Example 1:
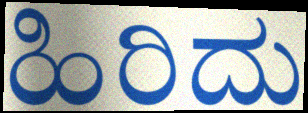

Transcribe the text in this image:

ಹಿರಿದು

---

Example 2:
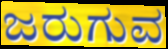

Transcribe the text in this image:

ಜರುಗುವ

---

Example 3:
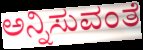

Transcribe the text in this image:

ಅನ್ನಿಸುವಂತೆ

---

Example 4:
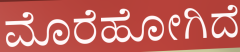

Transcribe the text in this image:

ಮೊರೆಹೋಗಿದೆ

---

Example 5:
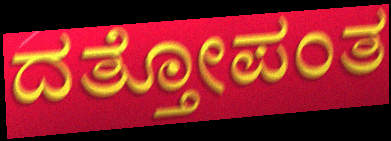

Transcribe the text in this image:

ದತ್ತೋಪಂತ